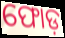
ଫୋଡ଼